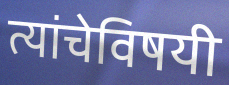
त्यांचेविषयी